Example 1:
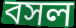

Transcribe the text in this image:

বসল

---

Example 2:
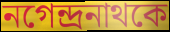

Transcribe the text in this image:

নগেন্দ্রনাথকে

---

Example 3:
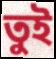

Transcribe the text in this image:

তুই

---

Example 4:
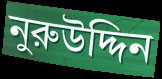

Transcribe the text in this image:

নুরুউদ্দিন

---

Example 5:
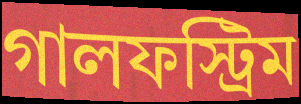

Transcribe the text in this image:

গালফস্ট্রিম